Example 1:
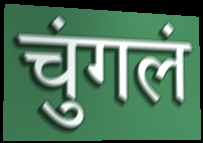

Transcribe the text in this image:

चुंगलं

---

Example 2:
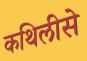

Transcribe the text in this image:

कथिलीसे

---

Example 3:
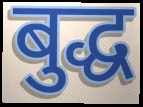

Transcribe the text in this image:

बुद्ध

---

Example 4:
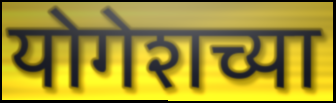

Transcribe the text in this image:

योगेशच्या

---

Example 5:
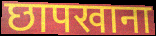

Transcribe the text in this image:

छापखाना